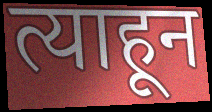
त्याहून